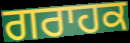
ਗਰਾਹਕ